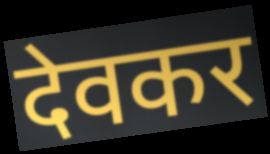
देवकर